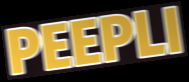
PEEPLI